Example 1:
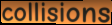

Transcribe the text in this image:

collisions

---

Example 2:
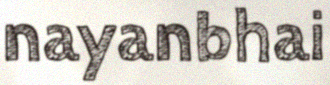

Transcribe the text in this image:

nayanbhai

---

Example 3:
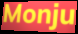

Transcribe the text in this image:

Monju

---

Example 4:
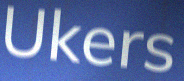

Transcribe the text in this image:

Ukers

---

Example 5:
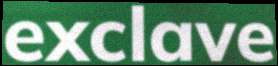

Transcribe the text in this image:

exclave